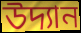
উদ্যান